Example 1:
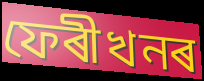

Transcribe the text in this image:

ফেৰীখনৰ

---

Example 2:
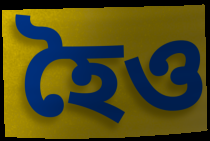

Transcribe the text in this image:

হৈও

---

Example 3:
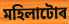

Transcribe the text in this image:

মহিলাটোৰ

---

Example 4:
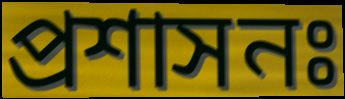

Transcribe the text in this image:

প্ৰশাসনঃ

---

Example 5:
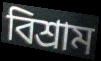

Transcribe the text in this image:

বিশ্ৰাম